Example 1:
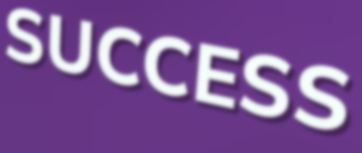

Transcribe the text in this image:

SUCCESS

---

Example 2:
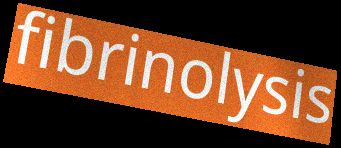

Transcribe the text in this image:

fibrinolysis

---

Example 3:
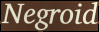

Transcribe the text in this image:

Negroid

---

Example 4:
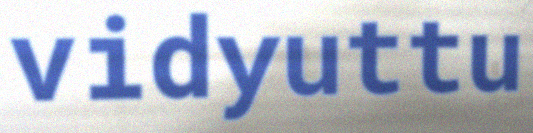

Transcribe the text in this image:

vidyuttu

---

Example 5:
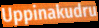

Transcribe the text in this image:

Uppinakudru